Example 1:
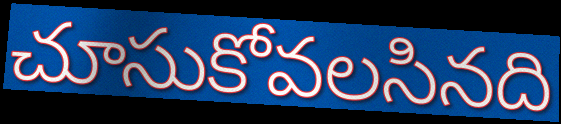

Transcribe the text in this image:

చూసుకోవలసినది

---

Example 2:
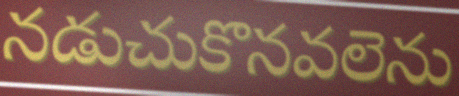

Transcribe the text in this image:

నడుచుకొనవలెను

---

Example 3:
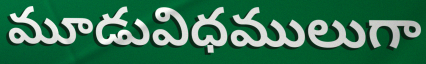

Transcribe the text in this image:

మూడువిధములుగా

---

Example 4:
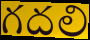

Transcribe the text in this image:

గదలి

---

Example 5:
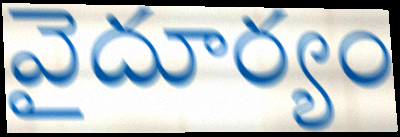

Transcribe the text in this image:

వైదూర్యం